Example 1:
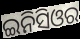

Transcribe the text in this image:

ଇନିସିଓର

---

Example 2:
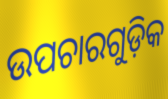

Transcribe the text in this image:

ଉପଚାରଗୁଡ଼ିକ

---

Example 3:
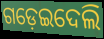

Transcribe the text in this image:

ଗଡ଼େଇଦେଲି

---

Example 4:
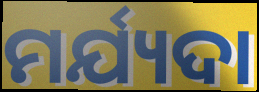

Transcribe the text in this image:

ମର୍ଯ୍ୟଦା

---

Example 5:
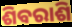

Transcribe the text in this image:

ଶିବରାଶି